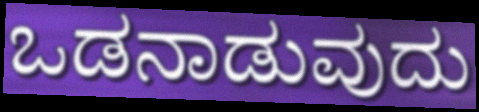
ಒಡನಾಡುವುದು